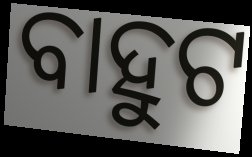
ବାହୁଟ